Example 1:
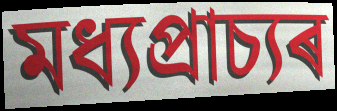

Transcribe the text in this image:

মধ্যপ্ৰাচ্যৰ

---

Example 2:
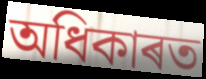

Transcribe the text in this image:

অধিকাৰত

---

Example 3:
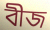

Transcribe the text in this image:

বীজ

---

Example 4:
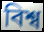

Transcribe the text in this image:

বিশ্ব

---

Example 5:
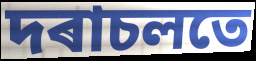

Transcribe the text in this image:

দৰাচলতে